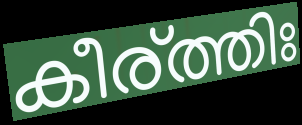
കീര്ത്തിഃ